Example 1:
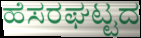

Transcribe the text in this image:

ಹೆಸರಘಟ್ಟದ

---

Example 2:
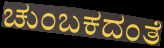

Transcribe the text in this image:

ಚುಂಬಕದಂತೆ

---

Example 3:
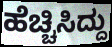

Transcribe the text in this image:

ಹೆಚ್ಚಿಸಿದ್ದು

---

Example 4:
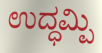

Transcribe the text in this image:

ಉದ್ಧಮ್ಪಿ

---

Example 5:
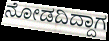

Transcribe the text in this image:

ನೋಡದಿದ್ದಾಗ